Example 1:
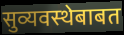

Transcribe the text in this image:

सुव्यवस्थेबाबत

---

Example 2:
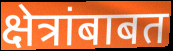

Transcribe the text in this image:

क्षेत्रांबाबत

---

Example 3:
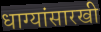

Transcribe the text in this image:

धाग्यांसारखी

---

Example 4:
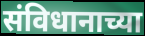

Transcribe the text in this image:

संविधानाच्या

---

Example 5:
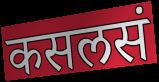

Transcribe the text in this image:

कसलसं